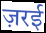
ज़रई